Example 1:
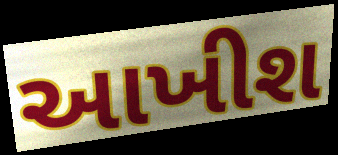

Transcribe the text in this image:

આખીશ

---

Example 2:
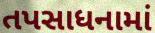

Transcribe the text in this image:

તપસાધનામાં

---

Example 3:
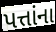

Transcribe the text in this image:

પત્તાંના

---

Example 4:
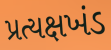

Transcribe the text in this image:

પ્રત્યક્ષખંડ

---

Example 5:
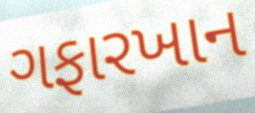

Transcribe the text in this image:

ગફારખાન